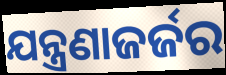
ଯନ୍ତ୍ରଣାଜର୍ଜର